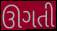
ઊગતી